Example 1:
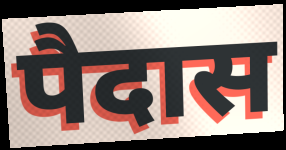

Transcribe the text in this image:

पैदास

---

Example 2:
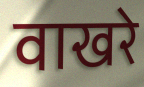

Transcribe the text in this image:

वाखरे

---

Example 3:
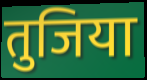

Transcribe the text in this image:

तुजिया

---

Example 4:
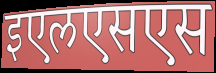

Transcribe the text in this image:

इएलएसएस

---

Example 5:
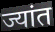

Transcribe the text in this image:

ज्यांत